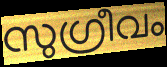
സുഗ്രീവം